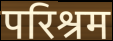
परिश्रम